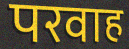
परवाह